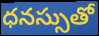
ధనస్సుతో